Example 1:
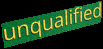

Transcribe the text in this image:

unqualified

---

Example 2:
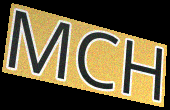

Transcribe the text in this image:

MCH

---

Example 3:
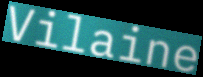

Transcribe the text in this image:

Vilaine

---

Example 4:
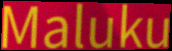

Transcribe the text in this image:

Maluku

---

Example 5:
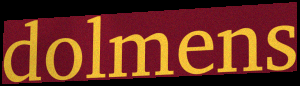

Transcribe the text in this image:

dolmens